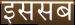
इससब